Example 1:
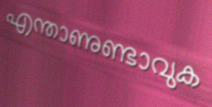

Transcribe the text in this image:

എന്താണുണ്ടാവുക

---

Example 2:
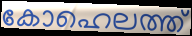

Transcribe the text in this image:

കോഹെലത്ത്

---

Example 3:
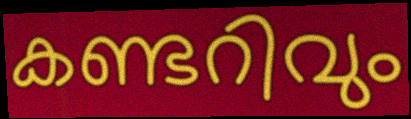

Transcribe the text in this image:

കണ്ടറിവും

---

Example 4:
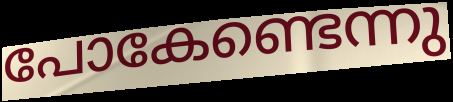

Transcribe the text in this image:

പോകേണ്ടെന്നു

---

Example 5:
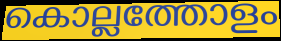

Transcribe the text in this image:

കൊല്ലത്തോളം